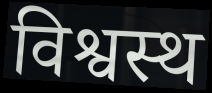
विश्वस्थ